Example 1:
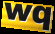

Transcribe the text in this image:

wq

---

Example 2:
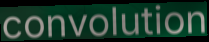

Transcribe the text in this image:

convolution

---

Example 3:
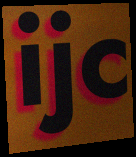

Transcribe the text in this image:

ijc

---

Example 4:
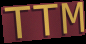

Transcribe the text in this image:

TTM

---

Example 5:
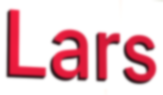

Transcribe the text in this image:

Lars